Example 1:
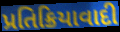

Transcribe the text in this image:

પ્રતિક્રિયાવાદી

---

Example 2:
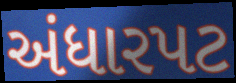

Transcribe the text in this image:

અંધારપટ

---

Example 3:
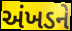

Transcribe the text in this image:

અંખડને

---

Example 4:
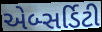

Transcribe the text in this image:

એબ્સર્ડિટી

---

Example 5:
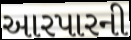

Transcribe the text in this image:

આરપારની